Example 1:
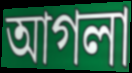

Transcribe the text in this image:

আগলা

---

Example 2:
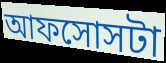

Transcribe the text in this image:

আফসোসটা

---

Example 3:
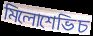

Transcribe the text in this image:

মিলোশেভিচ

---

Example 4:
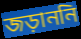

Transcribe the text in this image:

জড়াননি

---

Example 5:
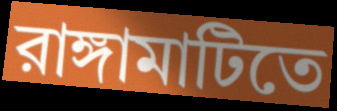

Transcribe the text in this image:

রাঙ্গামাটিতে